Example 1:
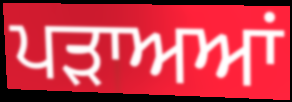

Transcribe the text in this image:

ਪੜਾਅਆਂ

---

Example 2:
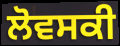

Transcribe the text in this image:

ਲੋਵਸਕੀ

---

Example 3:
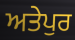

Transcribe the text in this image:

ਅਤੇਪੁਰ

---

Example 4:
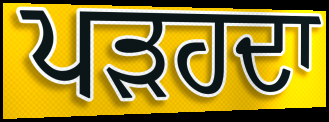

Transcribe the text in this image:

ਪੜਹਦਾ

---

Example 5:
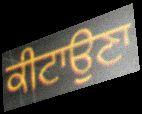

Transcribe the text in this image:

ਕੀਟਾਉਣਾ